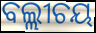
ବଲ୍ଲୀଚୟ